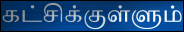
கட்சிக்குள்ளும்